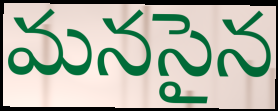
మనసైన